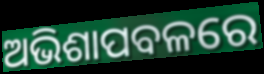
ଅଭିଶାପବଳରେ